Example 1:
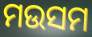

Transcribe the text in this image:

ମଉସମ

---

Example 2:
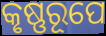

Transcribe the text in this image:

କୃଷ୍ଣରୂପେ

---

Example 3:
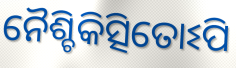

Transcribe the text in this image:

ନୈଶ୍ଚିକିତ୍ସିତୋଽପି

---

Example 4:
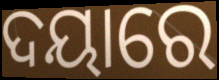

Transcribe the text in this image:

ଦୟାରେ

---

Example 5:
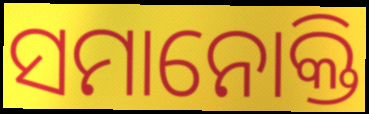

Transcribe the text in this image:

ସମାନୋକ୍ତି